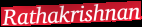
Rathakrishnan